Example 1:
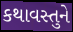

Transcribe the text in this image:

કથાવસ્તુને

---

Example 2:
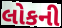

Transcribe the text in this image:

લોકની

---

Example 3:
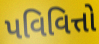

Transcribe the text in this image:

પવિવિત્તો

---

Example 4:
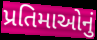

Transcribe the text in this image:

પ્રતિમાઓનું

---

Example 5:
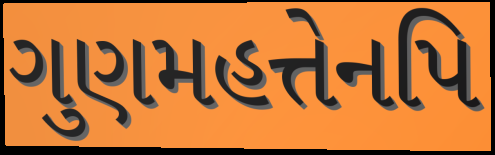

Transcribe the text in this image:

ગુણમહત્તેનપિ